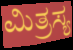
ಮಿತ್ರಸ್ಯ